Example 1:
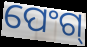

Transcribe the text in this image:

ପେଂଗ୍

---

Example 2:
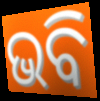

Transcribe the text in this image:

ଭବି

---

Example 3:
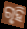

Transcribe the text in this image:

ଗୃହି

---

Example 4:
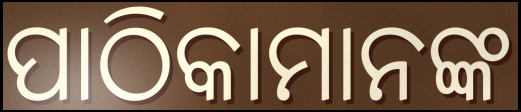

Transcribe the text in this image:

ପାଠିକାମାନଙ୍କ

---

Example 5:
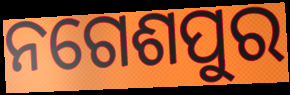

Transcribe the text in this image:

ନଗେଶପୁର